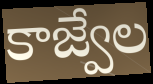
కాజ్వేల